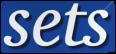
sets